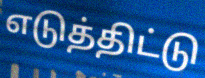
எடுத்திட்டு